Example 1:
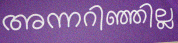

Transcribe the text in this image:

അന്നറിഞ്ഞില്ല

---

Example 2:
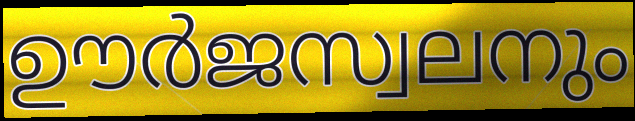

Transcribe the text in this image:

ഊർജസ്വലനും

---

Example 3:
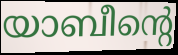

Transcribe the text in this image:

യാബീന്റെ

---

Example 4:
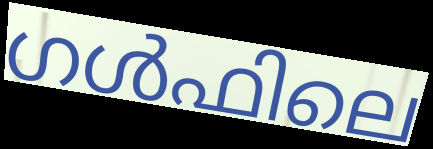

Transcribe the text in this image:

ഗൾഫിലെ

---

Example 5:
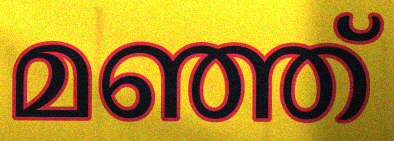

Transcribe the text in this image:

മഞ്ഞ്